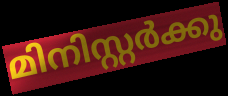
മിനിസ്റ്റർക്കു